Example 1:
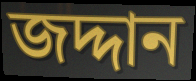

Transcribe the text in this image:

জদ্দান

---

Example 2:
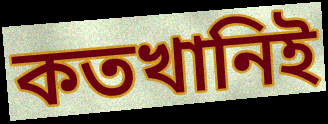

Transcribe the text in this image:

কতখানিই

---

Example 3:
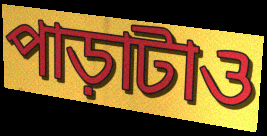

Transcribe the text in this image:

পাড়াটাও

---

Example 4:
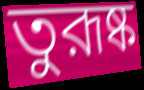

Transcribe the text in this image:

তুরূষ্ক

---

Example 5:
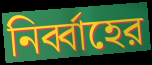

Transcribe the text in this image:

নির্ব্বাহের